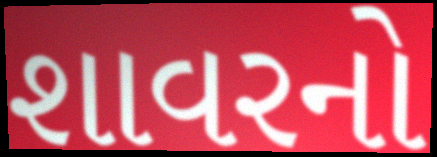
શાવરનો